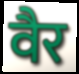
वैर